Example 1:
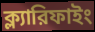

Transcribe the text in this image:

ক্ল্যারিফাইং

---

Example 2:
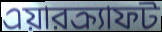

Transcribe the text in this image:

এয়ারক্র্যাফট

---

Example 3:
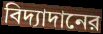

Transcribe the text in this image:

বিদ্যাদানের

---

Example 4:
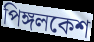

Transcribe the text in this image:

পিঙ্গলকেশ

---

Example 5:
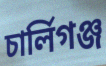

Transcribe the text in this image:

চার্লিগঞ্জ